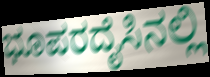
ಭೂಪರದೈಸಿನಲ್ಲಿ